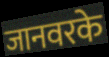
जानवरके